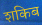
शकिब